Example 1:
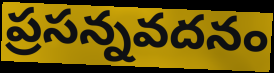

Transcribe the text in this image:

ప్రసన్నవదనం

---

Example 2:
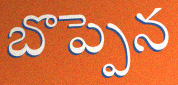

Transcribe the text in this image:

బొప్పెన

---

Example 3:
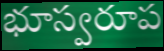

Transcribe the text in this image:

భూస్వరూప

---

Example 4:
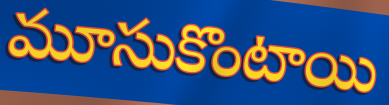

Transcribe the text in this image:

మూసుకొంటాయి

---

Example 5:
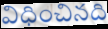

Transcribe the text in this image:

విధించినది